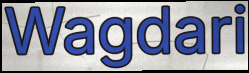
Wagdari